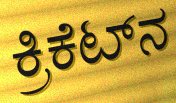
ಕ್ರಿಕೆಟ್‌ನ